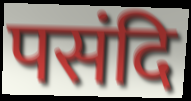
पसंदि